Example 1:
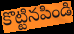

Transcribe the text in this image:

కొట్టినపిండి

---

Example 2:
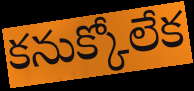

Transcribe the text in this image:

కనుక్కోలేక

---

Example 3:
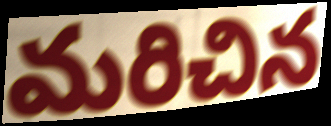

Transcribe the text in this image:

మరిచిన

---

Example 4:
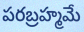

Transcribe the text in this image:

పరబ్రహ్మమే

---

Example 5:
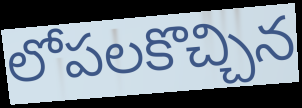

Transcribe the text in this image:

లోపలకొచ్చిన